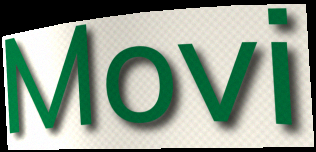
Movi